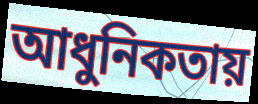
আধুনিকতায়